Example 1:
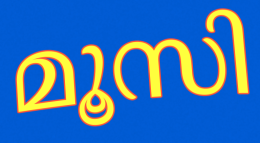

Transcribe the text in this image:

മൂസി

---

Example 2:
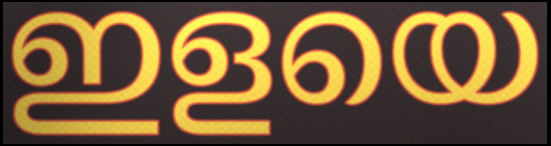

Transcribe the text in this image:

ഇളയെ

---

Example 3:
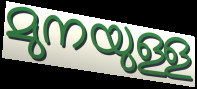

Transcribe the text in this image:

മുനയുള്ള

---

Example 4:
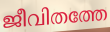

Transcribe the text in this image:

ജീവിതത്തേ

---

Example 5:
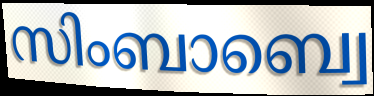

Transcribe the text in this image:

സിംബാബ്വെ